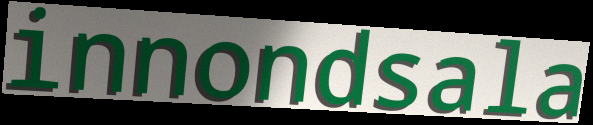
innondsala